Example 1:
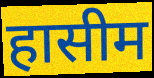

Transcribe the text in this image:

हासीम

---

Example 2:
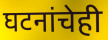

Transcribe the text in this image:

घटनांचेही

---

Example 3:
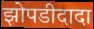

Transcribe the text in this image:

झोपडीदादा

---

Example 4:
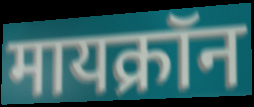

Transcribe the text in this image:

मायक्रॉन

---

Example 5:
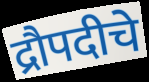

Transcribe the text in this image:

द्रौपदीचे